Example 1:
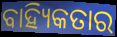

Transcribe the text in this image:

ବାହ୍ୟିକତାର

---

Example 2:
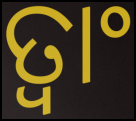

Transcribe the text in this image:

ତ୍ଵାଂ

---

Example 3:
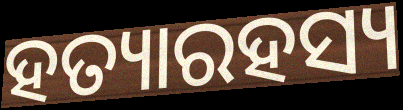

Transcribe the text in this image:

ହତ୍ୟାରହସ୍ୟ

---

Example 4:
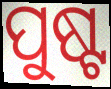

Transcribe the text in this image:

ପୁଷ୍ଟ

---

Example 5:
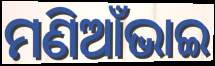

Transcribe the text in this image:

ମଣିଆଁଭାଇ